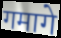
गमागे